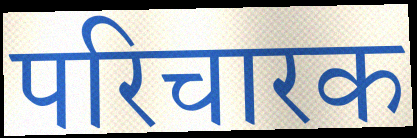
परिचारक